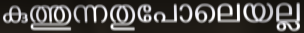
കുത്തുന്നതുപോലെയല്ല